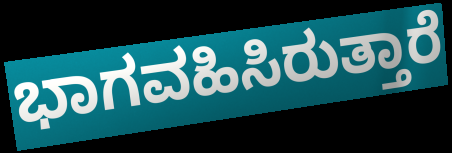
ಭಾಗವಹಿಸಿರುತ್ತಾರೆ